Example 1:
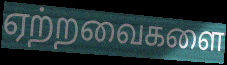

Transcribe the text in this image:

ஏற்றவைகளை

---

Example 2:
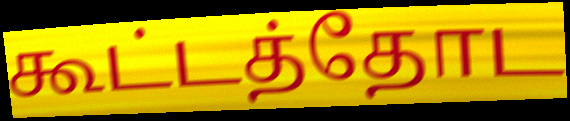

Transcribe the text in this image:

கூட்டத்தோட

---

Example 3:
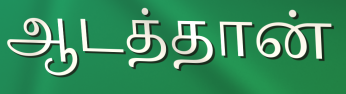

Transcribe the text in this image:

ஆடத்தான்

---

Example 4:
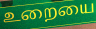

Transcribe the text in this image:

உறையை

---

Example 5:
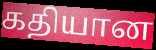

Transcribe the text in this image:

கதியான